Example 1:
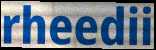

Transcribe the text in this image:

rheedii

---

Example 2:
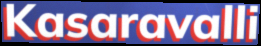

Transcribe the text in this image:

Kasaravalli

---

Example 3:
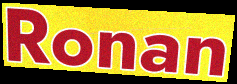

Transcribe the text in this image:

Ronan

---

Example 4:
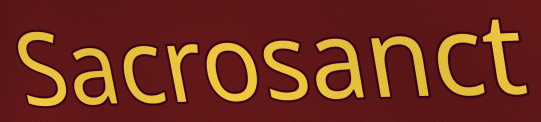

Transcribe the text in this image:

Sacrosanct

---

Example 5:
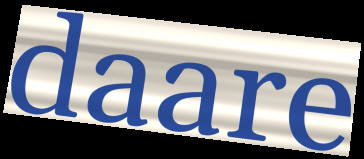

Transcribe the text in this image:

daare